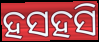
ହସହସି